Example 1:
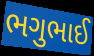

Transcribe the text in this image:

ભગુભાઈ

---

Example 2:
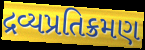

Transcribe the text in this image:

દ્રવ્યપ્રતિક્રમણ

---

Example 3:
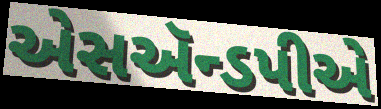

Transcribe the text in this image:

એસઍન્ડપીએ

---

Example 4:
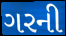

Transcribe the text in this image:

ગરની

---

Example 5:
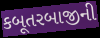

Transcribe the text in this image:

કબૂતરબાજીની